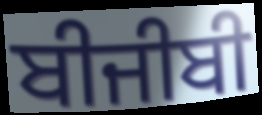
ਬੀਜੀਬੀ